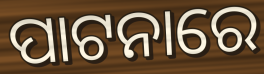
ପାଟନାରେ